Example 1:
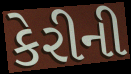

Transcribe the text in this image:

કેરીની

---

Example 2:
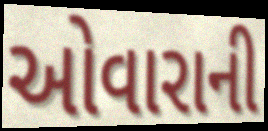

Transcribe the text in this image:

ઓવારાની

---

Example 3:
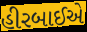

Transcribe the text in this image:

હીરબાઈએ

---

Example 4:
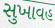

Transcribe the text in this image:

સુખાવહ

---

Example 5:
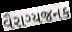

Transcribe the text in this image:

વૈરાગ્યજનક